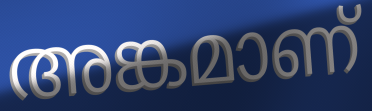
അങ്കമാണ്